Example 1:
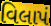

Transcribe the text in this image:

વિલાપં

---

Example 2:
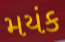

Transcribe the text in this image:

મયંક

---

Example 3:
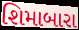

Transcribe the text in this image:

શિમાબારા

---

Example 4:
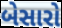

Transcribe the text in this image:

બેસારો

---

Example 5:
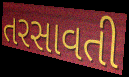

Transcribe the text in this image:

તરસાવતી